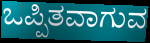
ಒಪ್ಪಿತವಾಗುವ